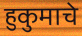
हुकुमाचे